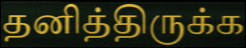
தனித்திருக்க